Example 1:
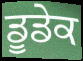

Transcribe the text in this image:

ਡੂਡੇਕ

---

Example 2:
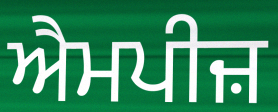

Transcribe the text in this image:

ਐਮਪੀਜ਼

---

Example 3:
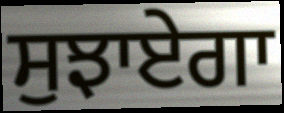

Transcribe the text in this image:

ਸੁਝਾਏਗਾ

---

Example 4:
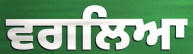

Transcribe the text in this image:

ਵਗਲਿਆ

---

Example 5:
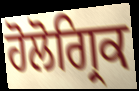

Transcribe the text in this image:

ਹੋਲੋਗ੍ਰਿਕ